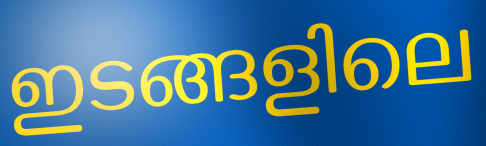
ഇടങ്ങളിലെ